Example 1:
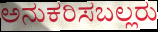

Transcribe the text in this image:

ಅನುಕರಿಸಬಲ್ಲರು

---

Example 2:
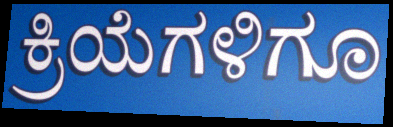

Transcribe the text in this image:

ಕ್ರಿಯೆಗಳಿಗೂ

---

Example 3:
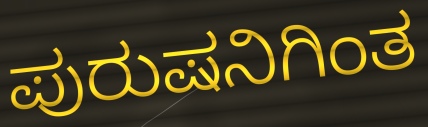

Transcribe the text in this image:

ಪುರುಷನಿಗಿಂತ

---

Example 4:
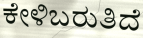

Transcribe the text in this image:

ಕೇಳಿಬರುತಿದೆ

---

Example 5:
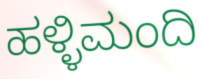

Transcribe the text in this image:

ಹಳ್ಳಿಮಂದಿ